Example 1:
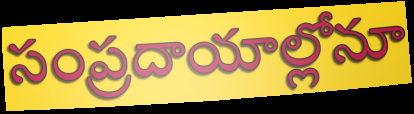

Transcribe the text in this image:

సంప్రదాయాల్లోనూ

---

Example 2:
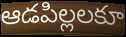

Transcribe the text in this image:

ఆడపిల్లలకూ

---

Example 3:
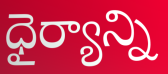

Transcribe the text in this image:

ధైర్యాన్ని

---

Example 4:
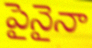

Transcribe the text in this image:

పైనైనా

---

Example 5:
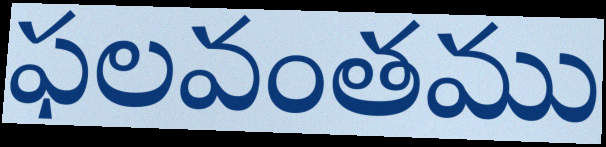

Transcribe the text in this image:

ఫలవంతము